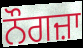
ਨੌਗਜ਼ਾ